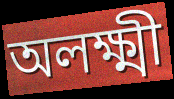
অলক্ষ্মী